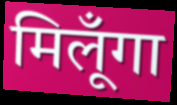
मिलूँगा